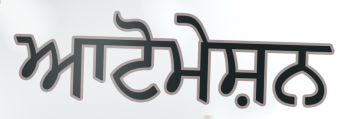
ਆਟੋਮੇਸ਼ਨ